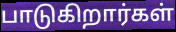
பாடுகிறார்கள்